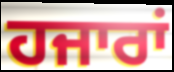
ਹਜਾਰਾਂ